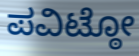
ಪವಿಟ್ಠೋ